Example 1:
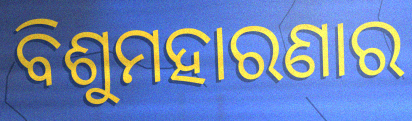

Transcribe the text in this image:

ବିଶୁମହାରଣାର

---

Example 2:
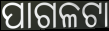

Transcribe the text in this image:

ପାଗଳଟା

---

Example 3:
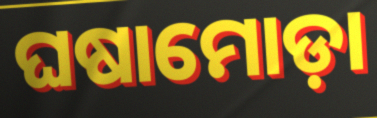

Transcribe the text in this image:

ଘଷାମୋଡ଼ା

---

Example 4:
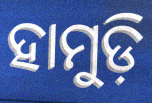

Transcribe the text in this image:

ହାମୁଡ଼ି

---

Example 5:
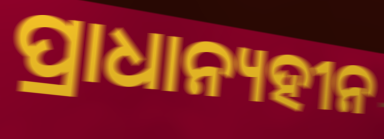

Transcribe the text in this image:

ପ୍ରାଧାନ୍ୟହୀନ